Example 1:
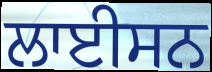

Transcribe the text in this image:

ਲਾਈਸਨ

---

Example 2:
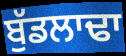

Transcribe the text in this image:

ਬੁੱਡਲਾਢਾ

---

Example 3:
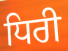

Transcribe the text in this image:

ਧਿਰੀ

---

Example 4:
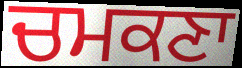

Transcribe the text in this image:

ਚਮਕਣਾ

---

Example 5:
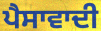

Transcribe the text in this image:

ਪੈਸਾਵਾਦੀ